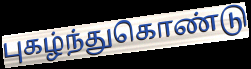
புகழ்ந்துகொண்டு